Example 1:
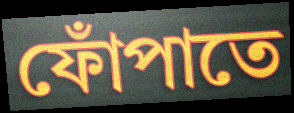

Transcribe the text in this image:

ফোঁপাতে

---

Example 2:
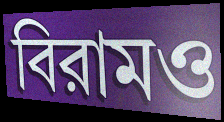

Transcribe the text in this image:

বিরামও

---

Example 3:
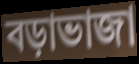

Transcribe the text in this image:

বড়াভাজা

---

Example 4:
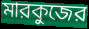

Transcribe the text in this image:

মারকুজের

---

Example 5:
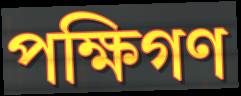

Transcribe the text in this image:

পক্ষিগণ